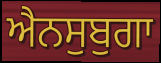
ਐਨਸੁਬੁਗਾ